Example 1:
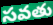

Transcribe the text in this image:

సవతు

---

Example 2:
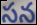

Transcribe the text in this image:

సన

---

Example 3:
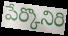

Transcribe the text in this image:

పేర్కొనిరి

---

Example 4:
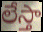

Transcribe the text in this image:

లేస్తా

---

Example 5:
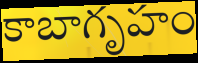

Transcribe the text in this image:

కాబాగృహం